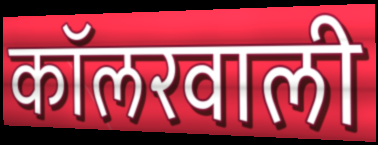
कॉलरवाली